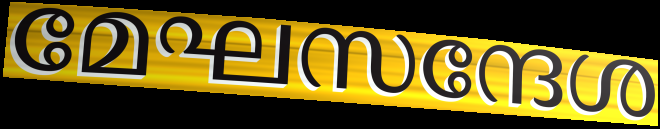
മേഘസന്ദേശ